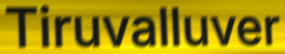
Tiruvalluver